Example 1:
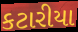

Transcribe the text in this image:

કટારીયા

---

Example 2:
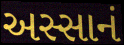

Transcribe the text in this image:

અસ્સાનં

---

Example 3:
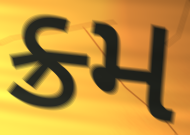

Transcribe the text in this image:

ક્ર્મ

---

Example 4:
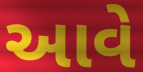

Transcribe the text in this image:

આવે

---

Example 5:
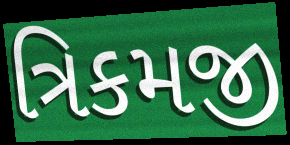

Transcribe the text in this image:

ત્રિકમજી